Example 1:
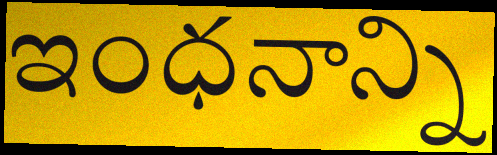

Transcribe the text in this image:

ఇంధనాన్ని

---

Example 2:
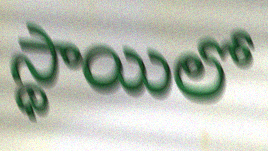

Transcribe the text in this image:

స్థాయిలో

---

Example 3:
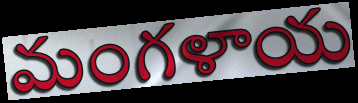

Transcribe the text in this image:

మంగళాయ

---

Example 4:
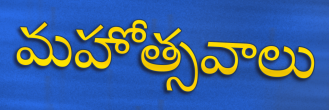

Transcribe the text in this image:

మహోత్సవాలు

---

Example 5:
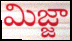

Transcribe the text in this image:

మిజ్జా